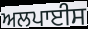
ਅਲਪਾਈਸ